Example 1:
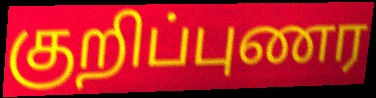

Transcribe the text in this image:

குறிப்புணர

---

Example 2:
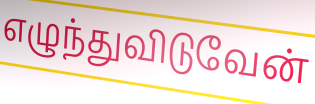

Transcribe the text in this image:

எழுந்துவிடுவேன்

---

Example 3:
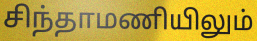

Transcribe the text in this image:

சிந்தாமணியிலும்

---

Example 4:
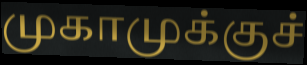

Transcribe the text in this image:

முகாமுக்குச்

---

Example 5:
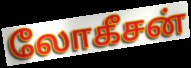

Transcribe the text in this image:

லோகீசன்